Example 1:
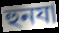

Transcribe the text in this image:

হুনযা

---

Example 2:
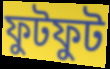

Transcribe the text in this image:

ফুটফুট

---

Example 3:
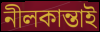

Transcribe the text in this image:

নীলকান্তাই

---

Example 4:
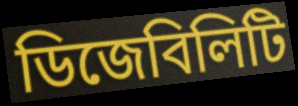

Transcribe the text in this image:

ডিজেবিলিটি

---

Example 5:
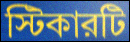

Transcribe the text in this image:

স্টিকারটি